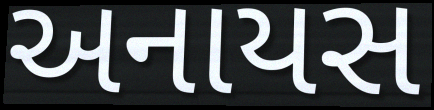
અનાયસ